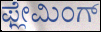
ಫ್ಲೇಮಿಂಗ್